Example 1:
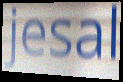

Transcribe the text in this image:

jesal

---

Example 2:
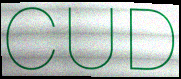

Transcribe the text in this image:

CUD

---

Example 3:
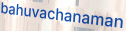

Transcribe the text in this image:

bahuvachanaman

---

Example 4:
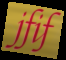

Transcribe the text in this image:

jfif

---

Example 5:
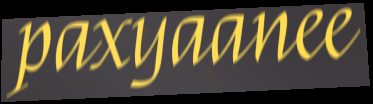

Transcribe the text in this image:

paxyaanee